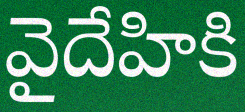
వైదేహికి